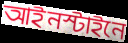
আইনস্টাইনে